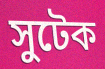
সুটেক